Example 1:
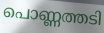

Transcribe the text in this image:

പൊണ്ണത്തടി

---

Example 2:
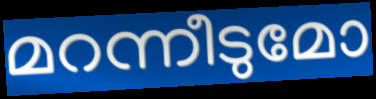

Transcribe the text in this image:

മറന്നീടുമോ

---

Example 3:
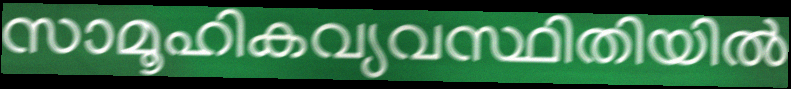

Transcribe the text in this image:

സാമൂഹികവ്യവസ്ഥിതിയിൽ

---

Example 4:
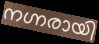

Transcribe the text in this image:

നഗ്നരായി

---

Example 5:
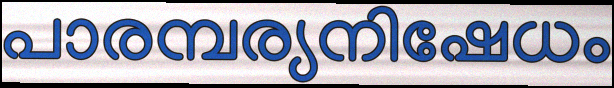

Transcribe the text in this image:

പാരമ്പര്യനിഷേധം